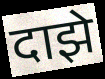
दाझे